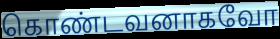
கொண்டவனாகவோ